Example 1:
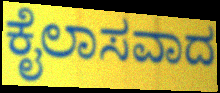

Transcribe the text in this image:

ಕೈಲಾಸವಾದ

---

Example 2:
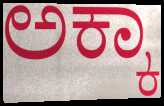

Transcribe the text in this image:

ಅಕ್ಕಾ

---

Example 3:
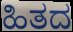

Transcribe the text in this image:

ಹಿತದ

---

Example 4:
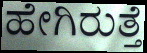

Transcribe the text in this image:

ಹೇಗಿರುತ್ತೆ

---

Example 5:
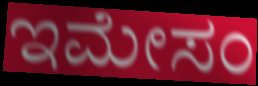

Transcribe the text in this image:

ಇಮೇಸಂ